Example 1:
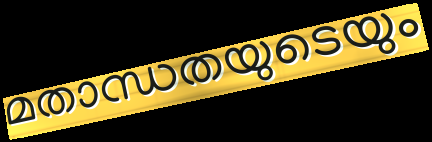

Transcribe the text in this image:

മതാന്ധതയുടെയും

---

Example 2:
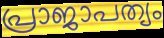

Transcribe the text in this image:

പ്രാജാപത്യം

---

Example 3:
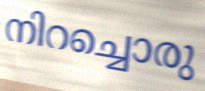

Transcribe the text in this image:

നിറച്ചൊരു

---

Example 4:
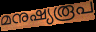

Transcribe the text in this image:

മനുഷ്യരൂപ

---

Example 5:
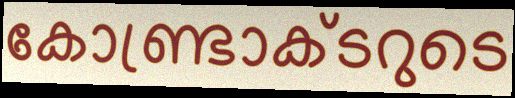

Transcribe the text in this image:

കോണ്ട്രാക്ടറുടെ